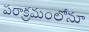
పరాక్రమంలోనూ